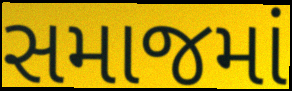
સમાજમાં